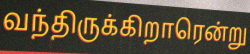
வந்திருக்கிறாரென்று